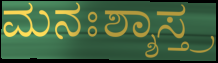
ಮನಃಶ್ಶಾಸ್ತ್ರ